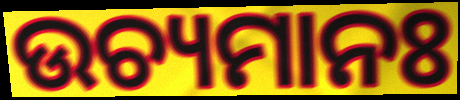
ଉଚ୍ୟମାନଃ